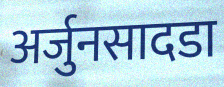
अर्जुनसादडा